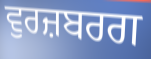
ਵੁਰਜ਼ਬਰਗ